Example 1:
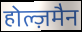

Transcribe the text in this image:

होल्ज़मैन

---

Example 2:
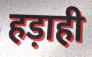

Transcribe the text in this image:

हड़ाही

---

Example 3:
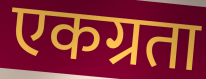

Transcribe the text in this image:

एकग्रता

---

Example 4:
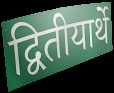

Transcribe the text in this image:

द्वितीयार्थे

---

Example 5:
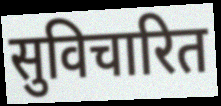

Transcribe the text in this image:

सुविचारित